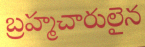
బ్రహ్మచారులైన